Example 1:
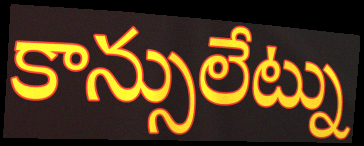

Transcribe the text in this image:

కాన్సులేట్ను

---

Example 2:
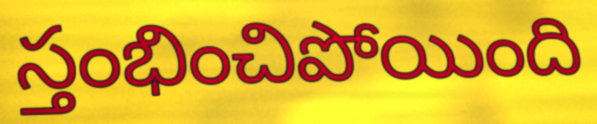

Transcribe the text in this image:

స్తంభించిపోయింది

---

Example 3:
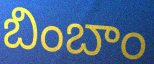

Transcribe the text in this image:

బింబాం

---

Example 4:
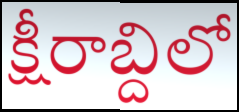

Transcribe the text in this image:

క్షీరాబ్దిలో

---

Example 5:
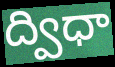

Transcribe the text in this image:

ద్విధా